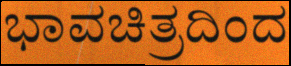
ಭಾವಚಿತ್ರದಿಂದ